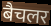
बैचलर